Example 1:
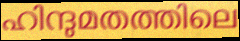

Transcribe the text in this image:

ഹിന്ദുമതത്തിലെ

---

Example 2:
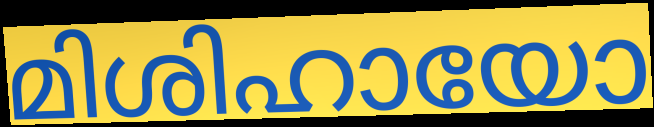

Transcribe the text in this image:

മിശിഹായോ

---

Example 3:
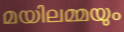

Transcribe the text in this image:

മയിലമ്മയും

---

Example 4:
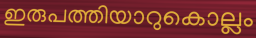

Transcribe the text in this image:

ഇരുപത്തിയാറുകൊല്ലം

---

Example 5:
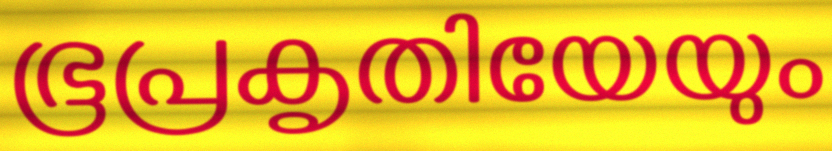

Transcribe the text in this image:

ഭൂപ്രകൃതിയേയും